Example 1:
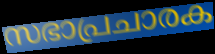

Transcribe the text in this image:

സഭാപ്രചാരക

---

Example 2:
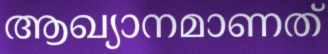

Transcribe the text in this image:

ആഖ്യാനമാണത്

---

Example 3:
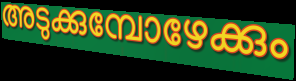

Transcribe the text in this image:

അടുക്കുമ്പോഴേക്കും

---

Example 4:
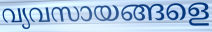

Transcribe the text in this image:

വ്യവസായങ്ങളെ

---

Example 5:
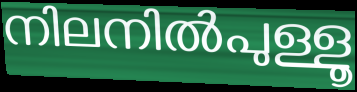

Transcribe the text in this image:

നിലനിൽപുള്ളൂ